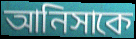
আনিসাকে